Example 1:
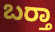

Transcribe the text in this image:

ಬರ‍್ತಾ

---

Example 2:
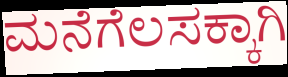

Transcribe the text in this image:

ಮನೆಗೆಲಸಕ್ಕಾಗಿ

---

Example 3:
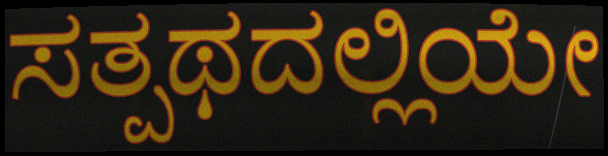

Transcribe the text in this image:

ಸತ್ಪಥದಲ್ಲಿಯೇ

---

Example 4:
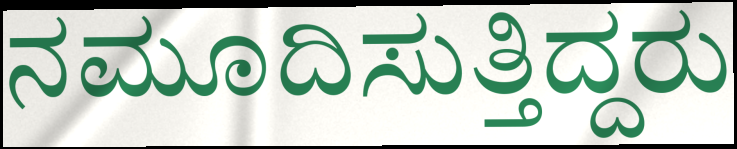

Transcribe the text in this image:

ನಮೂದಿಸುತ್ತಿದ್ದರು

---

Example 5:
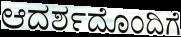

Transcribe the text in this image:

ಆದರ್ಶದೊಂದಿಗೆ